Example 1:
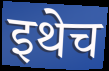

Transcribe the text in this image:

इथेच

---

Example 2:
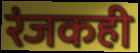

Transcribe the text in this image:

रंजकही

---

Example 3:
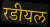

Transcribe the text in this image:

रडीयल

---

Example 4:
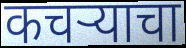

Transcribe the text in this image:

कचऱ्याचा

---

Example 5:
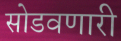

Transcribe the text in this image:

सोडवणारी